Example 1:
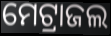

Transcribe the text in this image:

ମେଟ୍ରାଜଲ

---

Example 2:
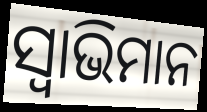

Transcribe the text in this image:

ସ୍ୱାଭିମାନ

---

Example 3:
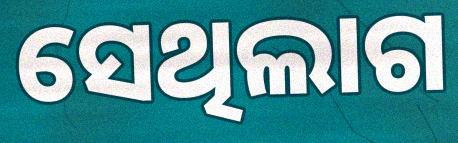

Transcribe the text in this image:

ସେଥିଲାଗ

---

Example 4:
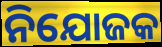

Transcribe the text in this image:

ନିଯୋଜକ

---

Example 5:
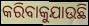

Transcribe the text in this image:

କରିବାକୁଯାଉଛି